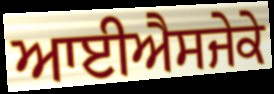
ਆਈਐਸਜੇਕੇ